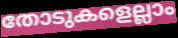
തോടുകളെല്ലാം